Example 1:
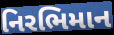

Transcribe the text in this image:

નિરભિમાન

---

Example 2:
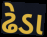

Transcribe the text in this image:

ઢેડા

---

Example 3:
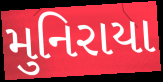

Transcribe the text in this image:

મુનિરાયા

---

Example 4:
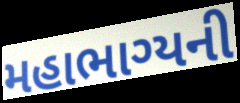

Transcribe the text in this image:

મહાભાગ્યની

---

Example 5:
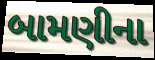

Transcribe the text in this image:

બામણીના